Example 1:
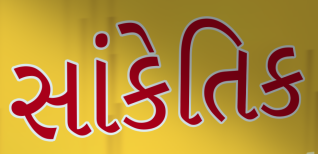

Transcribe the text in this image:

સાંકેતિક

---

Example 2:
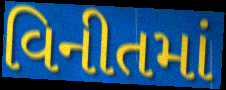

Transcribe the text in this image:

વિનીતમાં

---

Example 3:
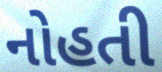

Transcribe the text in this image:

નોહતી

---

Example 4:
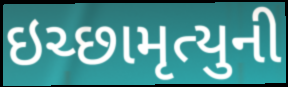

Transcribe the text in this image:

ઇચ્છામૃત્યુની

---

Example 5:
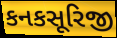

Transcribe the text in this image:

કનકસૂરિજી